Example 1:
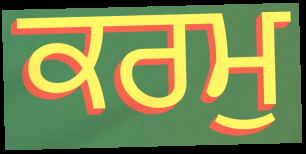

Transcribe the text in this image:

ਕਰਮੁ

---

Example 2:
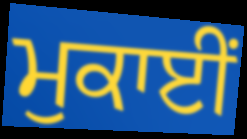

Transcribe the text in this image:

ਮੁਕਾਈਂ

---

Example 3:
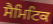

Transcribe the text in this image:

ਸੈਮਿਟਿਕ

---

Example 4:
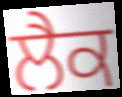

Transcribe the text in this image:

ਲੈਕ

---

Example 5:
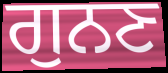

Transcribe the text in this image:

ਗੁਨਣ